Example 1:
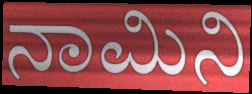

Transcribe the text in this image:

ನಾಮಿನಿ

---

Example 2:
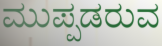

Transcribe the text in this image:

ಮುಪ್ಪಡರುವ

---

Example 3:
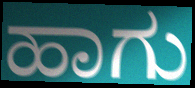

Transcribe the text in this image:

ಹಾಗು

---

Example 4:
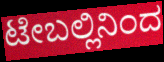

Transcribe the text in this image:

ಟೇಬಲ್ಲಿನಿಂದ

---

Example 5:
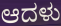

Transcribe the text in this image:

ಆದಳು